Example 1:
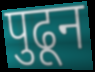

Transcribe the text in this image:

पुढून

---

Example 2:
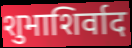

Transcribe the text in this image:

शुभाशिर्वाद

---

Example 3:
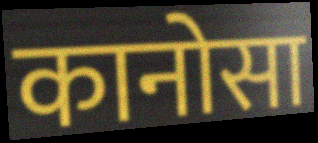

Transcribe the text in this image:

कानोसा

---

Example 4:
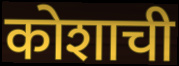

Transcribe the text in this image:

कोशाची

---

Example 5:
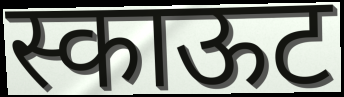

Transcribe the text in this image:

स्काऊट